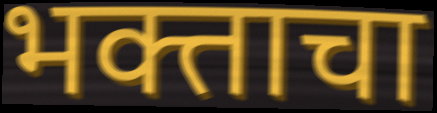
भक्ताचा